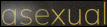
asexual